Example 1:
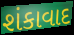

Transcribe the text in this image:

શંકાવાદ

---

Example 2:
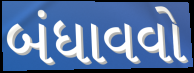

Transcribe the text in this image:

બંધાવવો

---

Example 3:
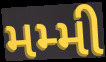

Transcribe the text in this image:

મમ્મી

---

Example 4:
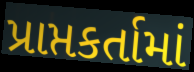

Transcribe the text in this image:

પ્રાપ્તકર્તામાં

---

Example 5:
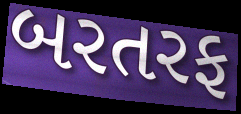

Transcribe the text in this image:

બરતરફ